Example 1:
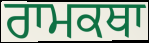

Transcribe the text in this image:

ਰਾਮਕਥਾ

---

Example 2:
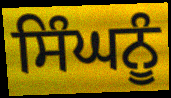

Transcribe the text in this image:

ਸਿੰਘਨੂੰ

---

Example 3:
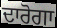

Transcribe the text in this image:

ਦਾਰੋਗਾ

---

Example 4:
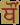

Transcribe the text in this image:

ਥੌਂ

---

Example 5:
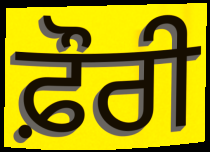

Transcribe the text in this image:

ਫ਼ੌਰੀ